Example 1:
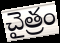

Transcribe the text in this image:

చైత్రం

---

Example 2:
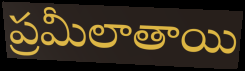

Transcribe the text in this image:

ప్రమీలాతాయి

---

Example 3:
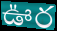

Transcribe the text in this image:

ఊర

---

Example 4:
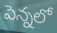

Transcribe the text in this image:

పెన్నలో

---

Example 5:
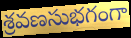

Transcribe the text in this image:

శ్రవణసుభగంగా